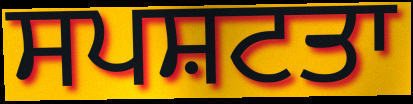
ਸਪਸ਼ਟਤਾ